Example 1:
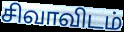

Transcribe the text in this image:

சிவாவிடம்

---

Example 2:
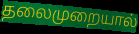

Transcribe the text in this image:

தலைமுறையால்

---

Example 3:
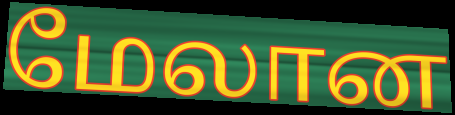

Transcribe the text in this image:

மேலான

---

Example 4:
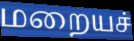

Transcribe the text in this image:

மறையச்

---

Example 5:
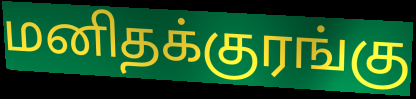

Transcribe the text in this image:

மனிதக்குரங்கு